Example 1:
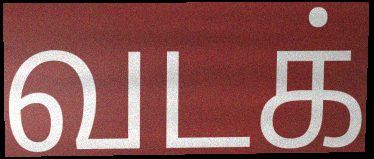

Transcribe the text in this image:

வடக்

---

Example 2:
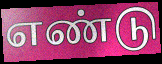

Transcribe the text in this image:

எண்டு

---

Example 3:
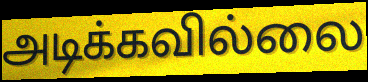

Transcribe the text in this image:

அடிக்கவில்லை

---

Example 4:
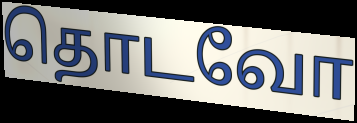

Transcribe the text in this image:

தொடவோ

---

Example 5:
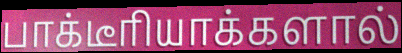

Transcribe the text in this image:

பாக்டீரியாக்களால்